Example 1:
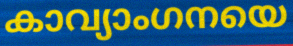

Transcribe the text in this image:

കാവ്യാംഗനയെ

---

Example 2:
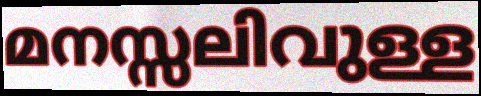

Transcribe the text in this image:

മനസ്സലിവുള്ള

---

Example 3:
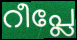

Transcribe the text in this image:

റീപ്ലേ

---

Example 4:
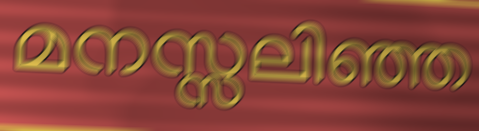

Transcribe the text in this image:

മനസ്സലിഞ്ഞ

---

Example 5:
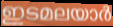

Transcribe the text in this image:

ഇടമലയാർ